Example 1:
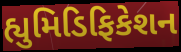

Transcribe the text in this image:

હ્યુમિડિફિકેશન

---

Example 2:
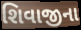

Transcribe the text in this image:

શિવાજીના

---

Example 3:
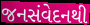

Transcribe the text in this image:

જનસંવેદનથી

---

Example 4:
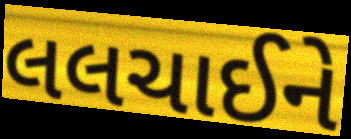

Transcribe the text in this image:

લલચાઈને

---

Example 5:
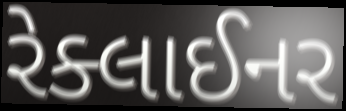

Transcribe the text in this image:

રેક્લાઈનર